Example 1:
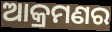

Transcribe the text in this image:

ଆକ୍ରମଣର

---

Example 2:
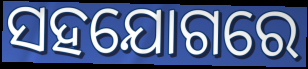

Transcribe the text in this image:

ସହଯୋଗରେ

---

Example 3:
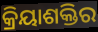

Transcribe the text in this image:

କ୍ରିୟାଶକ୍ତିର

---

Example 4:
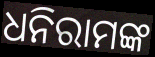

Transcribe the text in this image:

ଧନିରାମଙ୍କ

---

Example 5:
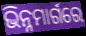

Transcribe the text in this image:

ଭିନ୍ନମାର୍ଗରେ